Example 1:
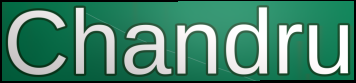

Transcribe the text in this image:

Chandru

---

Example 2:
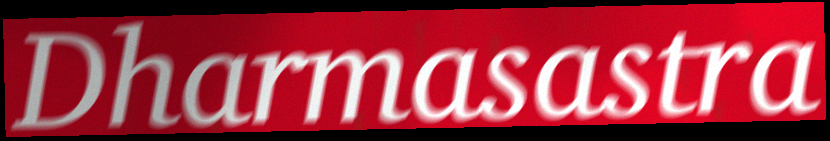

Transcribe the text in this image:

Dharmasastra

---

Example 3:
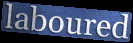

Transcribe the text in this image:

laboured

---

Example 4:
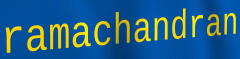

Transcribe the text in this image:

ramachandran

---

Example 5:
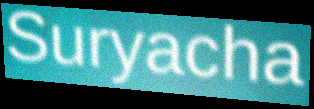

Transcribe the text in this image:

Suryacha